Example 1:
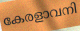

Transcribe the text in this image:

കേരളാവനി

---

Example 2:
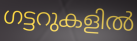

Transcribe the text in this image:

ഗട്ടറുകളിൽ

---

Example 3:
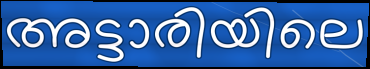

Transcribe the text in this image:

അട്ടാരിയിലെ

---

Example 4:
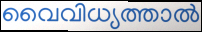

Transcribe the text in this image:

വൈവിധ്യത്താൽ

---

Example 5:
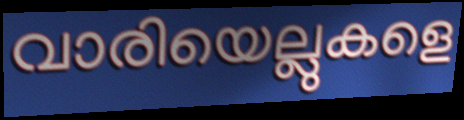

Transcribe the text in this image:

വാരിയെല്ലുകളെ